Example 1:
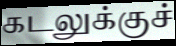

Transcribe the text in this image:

கடலுக்குச்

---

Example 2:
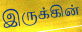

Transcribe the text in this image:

இருக்கின்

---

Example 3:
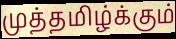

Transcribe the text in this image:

முத்தமிழ்க்கும்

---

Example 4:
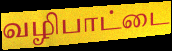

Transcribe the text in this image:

வழிபாட்டை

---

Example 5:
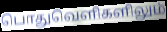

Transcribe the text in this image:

பொதுவெளிகளிலும்